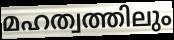
മഹത്വത്തിലും